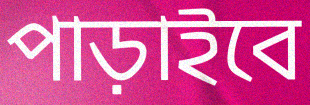
পাড়াইবে